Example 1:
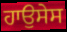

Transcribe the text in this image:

ਹਾਉਸੇਸ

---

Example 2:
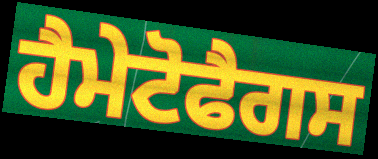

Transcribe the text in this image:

ਹੈਮੇਟੋਫੈਗਸ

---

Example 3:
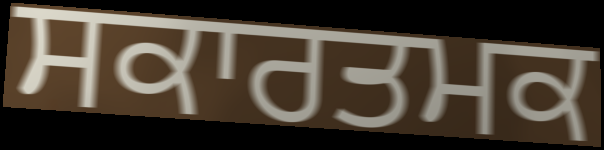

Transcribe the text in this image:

ਸਕਾਰਤਮਕ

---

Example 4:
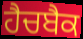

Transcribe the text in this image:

ਹੈਚਬੈਕ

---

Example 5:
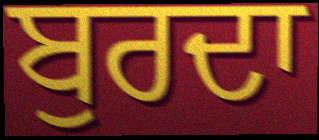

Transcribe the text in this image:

ਬੁਰਦਾ